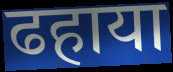
ढहाया